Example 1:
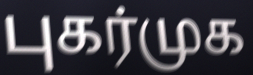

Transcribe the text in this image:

புகர்முக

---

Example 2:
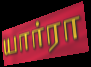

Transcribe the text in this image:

யார்ரா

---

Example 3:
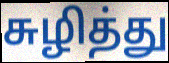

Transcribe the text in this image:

சுழித்து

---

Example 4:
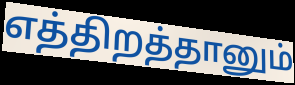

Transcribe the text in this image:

எத்திறத்தானும்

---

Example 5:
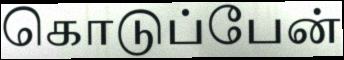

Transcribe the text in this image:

கொடுப்பேன்